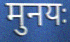
मुनयः